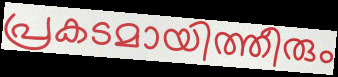
പ്രകടമായിത്തീരും